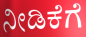
ನೀಡಿಕೆಗೆ